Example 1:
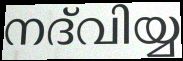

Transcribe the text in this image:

നദ്‌വിയ്യ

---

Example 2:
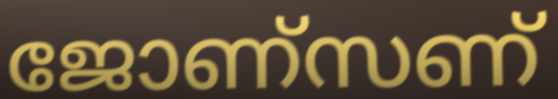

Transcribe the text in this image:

ജോണ്സണ്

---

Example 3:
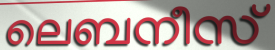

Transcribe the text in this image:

ലെബനീസ്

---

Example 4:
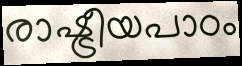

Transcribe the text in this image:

രാഷ്ട്രീയപാഠം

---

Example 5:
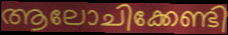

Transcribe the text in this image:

ആലോചിക്കേണ്ടി